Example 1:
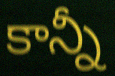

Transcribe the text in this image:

కాన్నీ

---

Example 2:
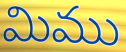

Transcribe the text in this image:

మిము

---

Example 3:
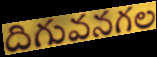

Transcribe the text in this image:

దిగువనగల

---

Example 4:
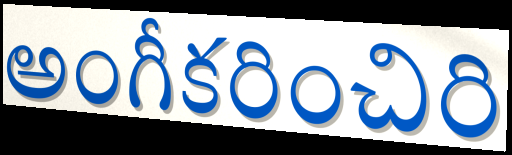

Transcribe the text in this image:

అంగీకరించిరి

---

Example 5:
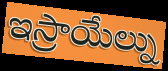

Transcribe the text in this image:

ఇస్రాయేల్ను